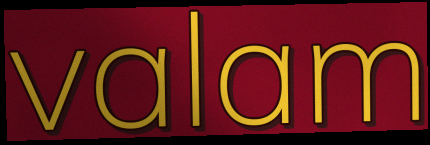
valam